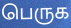
பெருக